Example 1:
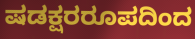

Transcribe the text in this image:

ಷಡಕ್ಷರರೂಪದಿಂದ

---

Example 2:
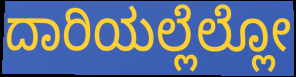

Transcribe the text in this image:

ದಾರಿಯಲ್ಲೆಲ್ಲೋ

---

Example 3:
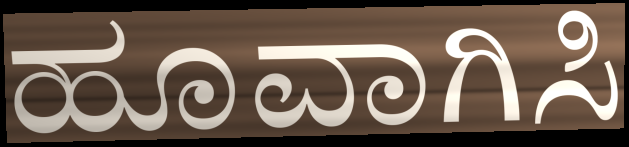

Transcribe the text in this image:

ಹೂವಾಗಿಸಿ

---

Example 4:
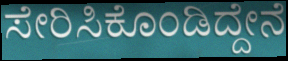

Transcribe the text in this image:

ಸೇರಿಸಿಕೊಂಡಿದ್ದೇನೆ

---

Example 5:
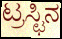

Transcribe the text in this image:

ಟ್ರಸ್ಟಿನ